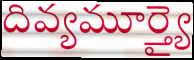
దివ్యమూర్త్యై